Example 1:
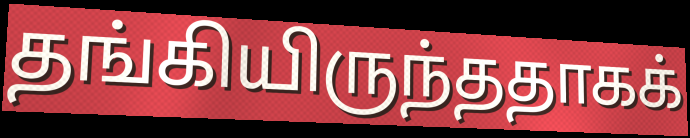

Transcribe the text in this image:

தங்கியிருந்ததாகக்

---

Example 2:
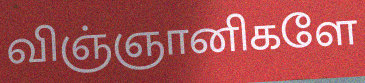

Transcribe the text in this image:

விஞ்ஞானிகளே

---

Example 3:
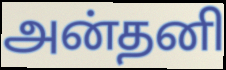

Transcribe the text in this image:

அன்தனி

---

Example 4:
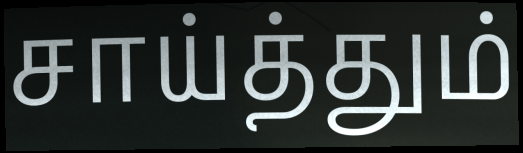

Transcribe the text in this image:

சாய்த்தும்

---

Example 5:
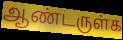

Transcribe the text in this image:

ஆண்டருள்க